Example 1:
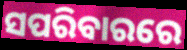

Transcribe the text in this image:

ସପରିବାରରେ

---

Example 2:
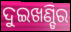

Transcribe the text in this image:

ଦୁଇଖଣ୍ଡିର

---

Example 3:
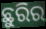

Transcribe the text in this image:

ଛୁରିର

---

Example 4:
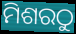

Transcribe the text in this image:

ମିଶରଠୁ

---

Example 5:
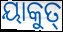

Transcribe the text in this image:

ୟାକୁତ୍